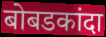
बोबडकांदा